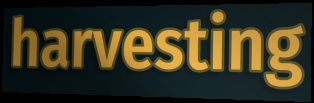
harvesting